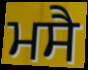
ਮਸੈ